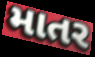
માતર